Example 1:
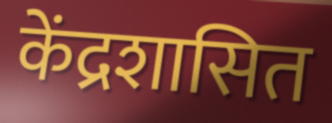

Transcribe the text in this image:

केंद्रशासित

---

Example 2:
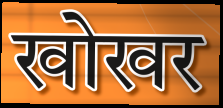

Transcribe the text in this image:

खोखर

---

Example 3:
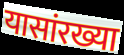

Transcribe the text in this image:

यासांरख्या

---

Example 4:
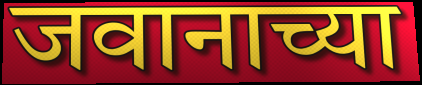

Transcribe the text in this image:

जवानाच्या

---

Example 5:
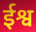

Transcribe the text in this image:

ईश्व